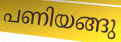
പണിയങ്ങു